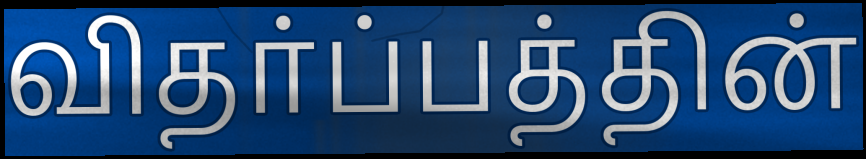
விதர்ப்பத்தின்